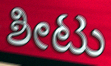
ಶೀಟು